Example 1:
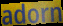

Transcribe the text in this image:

adorn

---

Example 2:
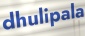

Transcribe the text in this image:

dhulipala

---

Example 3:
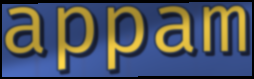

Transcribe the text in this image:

appam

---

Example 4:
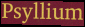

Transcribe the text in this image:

Psyllium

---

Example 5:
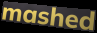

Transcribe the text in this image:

mashed